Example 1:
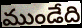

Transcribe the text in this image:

ముండేది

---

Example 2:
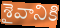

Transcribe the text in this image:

శైవానికి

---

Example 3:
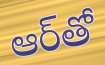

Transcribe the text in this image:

ఆర్‌తో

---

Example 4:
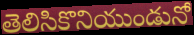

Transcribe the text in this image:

తెలిసికొనియుండునో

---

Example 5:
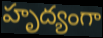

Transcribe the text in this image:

హృద్యంగా